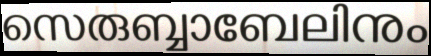
സെരുബ്ബാബേലിനും